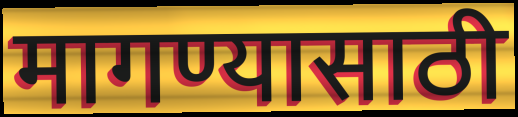
मागण्यासाठी